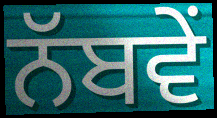
ਨੱਬਵੇਂ